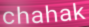
chahak